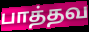
பாத்தவ